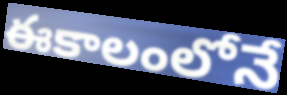
ఈకాలంలోనే